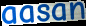
aasan